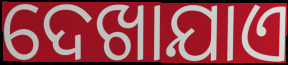
ଦେଖାଯାଏ